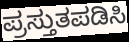
ಪ್ರಸ್ತುತಪಡಿಸಿ